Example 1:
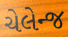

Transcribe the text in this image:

ચેલેન્જ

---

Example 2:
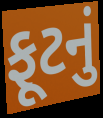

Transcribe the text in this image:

ફૂટનું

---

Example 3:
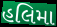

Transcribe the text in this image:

હલિમા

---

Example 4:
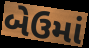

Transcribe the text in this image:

બેઉમાં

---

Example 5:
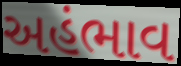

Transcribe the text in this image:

અહંભાવ